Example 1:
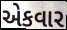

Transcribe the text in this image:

એકવાર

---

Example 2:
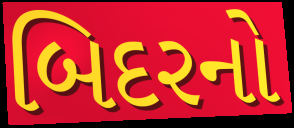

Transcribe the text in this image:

બિદરનો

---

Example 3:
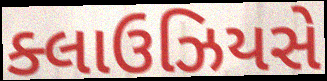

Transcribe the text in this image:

ક્લાઉઝિયસે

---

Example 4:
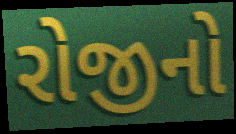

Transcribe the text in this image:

રોજીનો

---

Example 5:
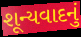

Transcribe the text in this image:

શૂન્યવાદનું